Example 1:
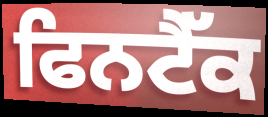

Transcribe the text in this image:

ਫਿਨਟੈੱਕ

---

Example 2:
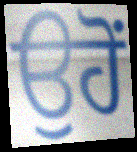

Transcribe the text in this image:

ਉਹੋਂ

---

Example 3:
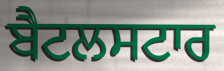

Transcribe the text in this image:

ਬੈਟਲਸਟਾਰ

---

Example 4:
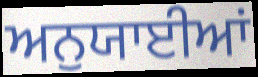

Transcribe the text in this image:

ਅਨੁਯਾਈਆਂ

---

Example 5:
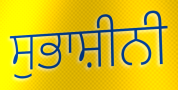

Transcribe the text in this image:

ਸੁਭਾਸ਼ੀਨੀ